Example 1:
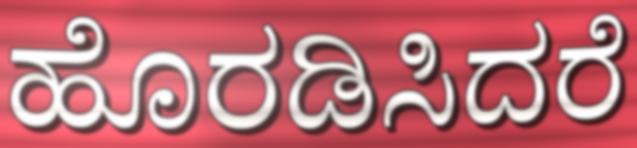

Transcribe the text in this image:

ಹೊರಡಿಸಿದರೆ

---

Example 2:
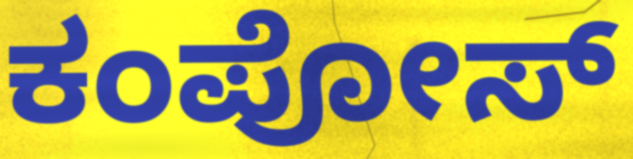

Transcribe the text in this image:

ಕಂಪೋಸ್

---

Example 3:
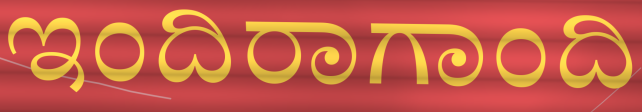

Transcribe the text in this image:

ಇಂದಿರಾಗಾಂದಿ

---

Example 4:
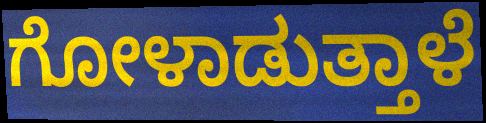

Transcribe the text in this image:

ಗೋಳಾಡುತ್ತಾಳೆ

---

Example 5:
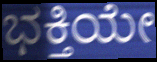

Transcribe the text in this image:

ಭಕ್ತಿಯೇ